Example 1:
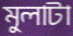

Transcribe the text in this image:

মুলাটা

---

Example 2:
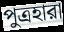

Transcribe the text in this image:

পুত্রহারা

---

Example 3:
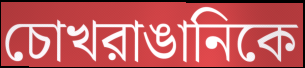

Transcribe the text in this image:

চোখরাঙানিকে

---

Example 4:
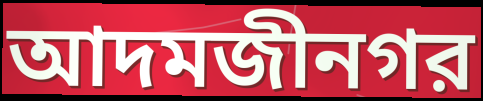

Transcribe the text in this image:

আদমজীনগর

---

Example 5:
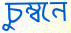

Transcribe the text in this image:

চুম্বনে